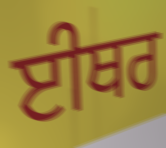
ਈਥਰ